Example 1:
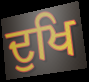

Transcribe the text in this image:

ਦੁਖਿ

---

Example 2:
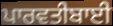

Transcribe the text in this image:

ਪਾਰਵਤੀਬਾਈ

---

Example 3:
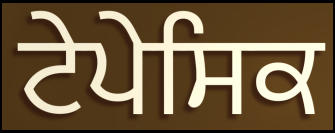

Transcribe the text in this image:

ਟੇਪੇਸਿਕ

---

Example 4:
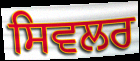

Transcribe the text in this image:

ਸਿਵਲਰ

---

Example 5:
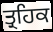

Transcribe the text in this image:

ਤ੍ਰਹਿਕ